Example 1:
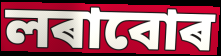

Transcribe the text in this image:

লৰাবোৰ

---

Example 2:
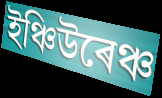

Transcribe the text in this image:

ইঞ্চিউৰেঞ্চ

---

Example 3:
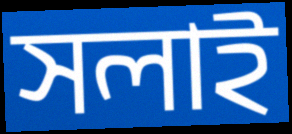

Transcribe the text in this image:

সলাই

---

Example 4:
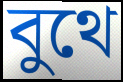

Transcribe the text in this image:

বুথে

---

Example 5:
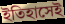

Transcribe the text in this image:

ইতিহাসেই